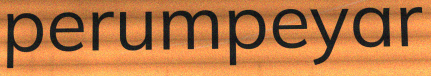
perumpeyar